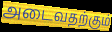
அடைவதற்கும்